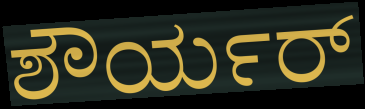
ಶೌರ್ಯರ್